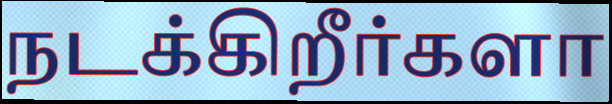
நடக்கிறீர்களா